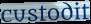
custodit